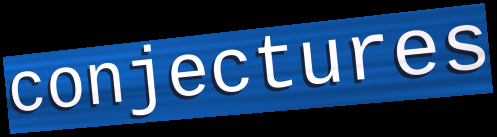
conjectures